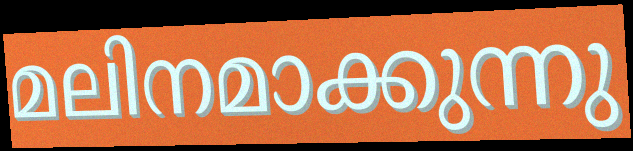
മലിനമാക്കുന്നു